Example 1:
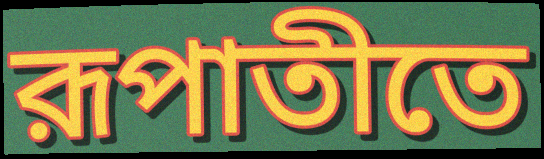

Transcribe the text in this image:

রূপাতীতে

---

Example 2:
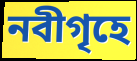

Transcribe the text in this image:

নবীগৃহে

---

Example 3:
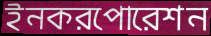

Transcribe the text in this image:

ইনকরপোরেশন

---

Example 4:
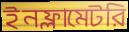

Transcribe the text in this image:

ইনফ্লামেটরি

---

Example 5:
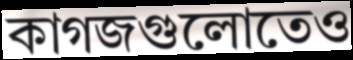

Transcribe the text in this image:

কাগজগুলোতেও